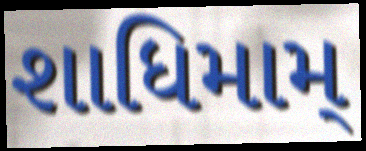
શાધિમામ્